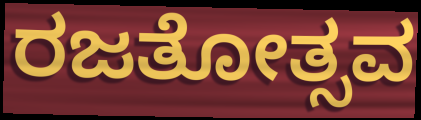
ರಜತೋತ್ಸವ